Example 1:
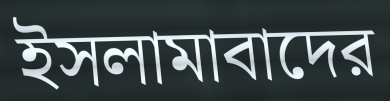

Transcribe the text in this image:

ইসলামাবাদের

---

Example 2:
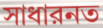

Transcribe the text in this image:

সাধারনত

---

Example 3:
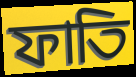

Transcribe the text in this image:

ফাতি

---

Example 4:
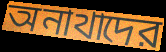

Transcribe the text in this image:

অনাথাদের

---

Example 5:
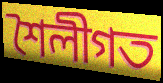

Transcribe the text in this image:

শৈলীগত